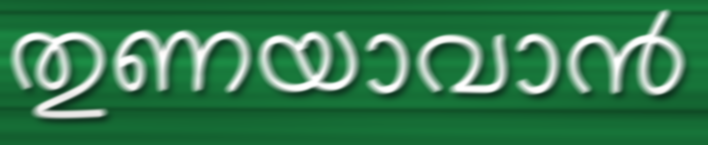
തുണയാവാൻ